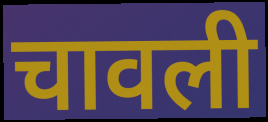
चावली